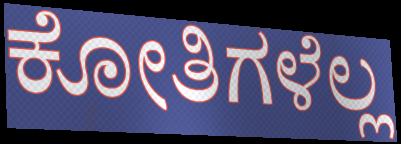
ಕೋತಿಗಳೆಲ್ಲ